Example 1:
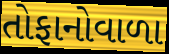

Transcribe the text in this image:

તોફાનોવાળા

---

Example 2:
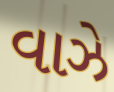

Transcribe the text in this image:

વાઝે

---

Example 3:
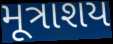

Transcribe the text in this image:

મૂત્રાશય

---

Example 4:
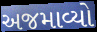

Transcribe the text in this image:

અજમાવ્યો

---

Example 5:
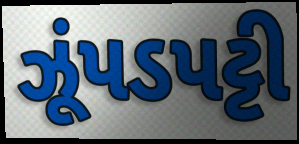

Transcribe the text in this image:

ઝૂંપડપટ્ટી